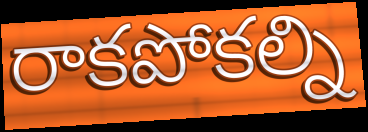
రాకపోకల్ని